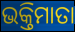
ଭକ୍ତିମାତା